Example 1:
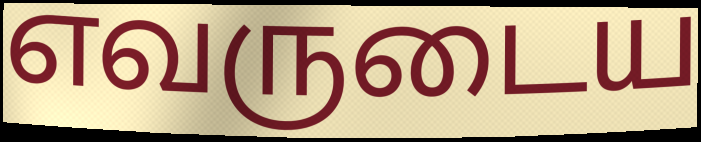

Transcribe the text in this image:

எவருடைய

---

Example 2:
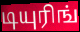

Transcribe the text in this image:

டியுரிங்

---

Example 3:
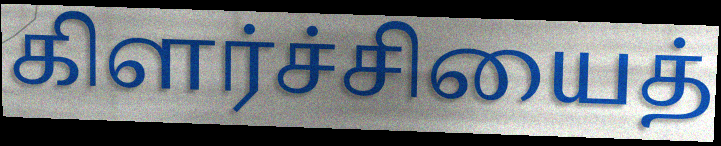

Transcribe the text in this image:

கிளர்ச்சியைத்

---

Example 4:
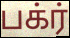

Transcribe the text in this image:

பக்ர்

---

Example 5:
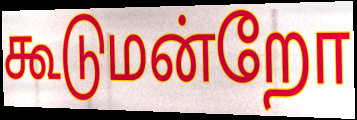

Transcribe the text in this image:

கூடுமன்றோ